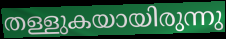
തള്ളുകയായിരുന്നു